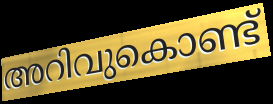
അറിവുകൊണ്ട്